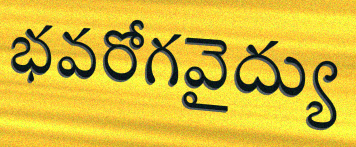
భవరోగవైద్యు